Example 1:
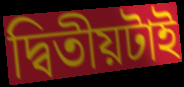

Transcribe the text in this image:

দ্বিতীয়টাই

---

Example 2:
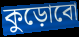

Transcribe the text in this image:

কুড়োবো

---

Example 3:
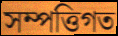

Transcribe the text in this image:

সম্পত্তিগত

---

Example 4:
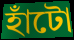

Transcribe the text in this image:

হাঁটো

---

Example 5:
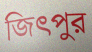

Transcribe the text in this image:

জিৎপুর